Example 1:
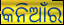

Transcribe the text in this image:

କନିଆଁର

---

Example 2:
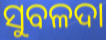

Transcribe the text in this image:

ସୁବଳଦା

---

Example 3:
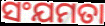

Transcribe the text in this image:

ସଂଯମତା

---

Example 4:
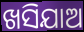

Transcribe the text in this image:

ଖସିଯାଅ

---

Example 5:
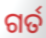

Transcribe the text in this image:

ଗର୍ତ